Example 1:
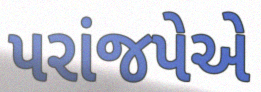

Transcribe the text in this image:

પરાંજપેએ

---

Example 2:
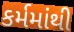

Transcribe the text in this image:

કર્મમાંથી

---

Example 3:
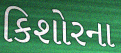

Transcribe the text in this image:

કિશોરના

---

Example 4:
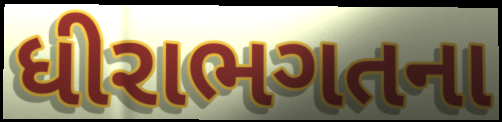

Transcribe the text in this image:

ધીરાભગતના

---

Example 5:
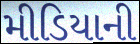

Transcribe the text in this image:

મીડિયાની